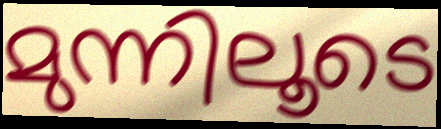
മുന്നിലൂടെ